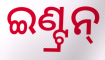
ଇଣ୍ଟ୍ରନ୍